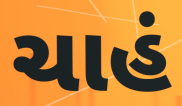
ચાહં